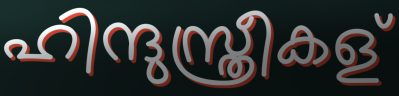
ഹിന്ദുസ്ത്രീകള്